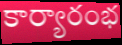
కార్యారంభ